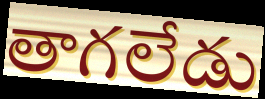
తాగలేడు